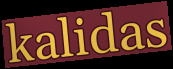
kalidas